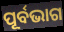
ପୂର୍ବଭାଗ